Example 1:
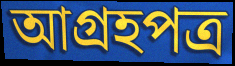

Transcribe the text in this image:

আগ্রহপত্র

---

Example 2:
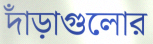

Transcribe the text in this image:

দাঁড়াগুলোর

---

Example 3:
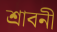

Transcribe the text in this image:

শ্রাবনী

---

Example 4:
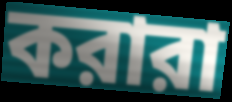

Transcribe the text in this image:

করারা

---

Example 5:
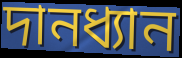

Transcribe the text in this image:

দানধ্যান